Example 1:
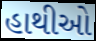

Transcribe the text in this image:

હાથીઓ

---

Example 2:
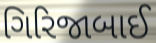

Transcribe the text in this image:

ગિરિજાબાઈ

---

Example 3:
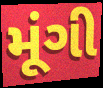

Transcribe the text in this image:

મૂંગી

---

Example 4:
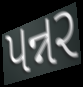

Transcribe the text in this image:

પન્નર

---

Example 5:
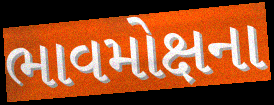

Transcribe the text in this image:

ભાવમોક્ષના